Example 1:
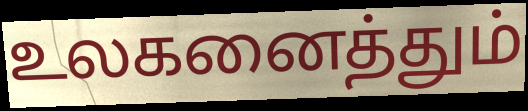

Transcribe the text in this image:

உலகனைத்தும்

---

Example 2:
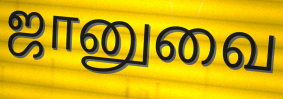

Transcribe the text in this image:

ஜானுவை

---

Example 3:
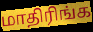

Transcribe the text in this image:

மாதிரிங்க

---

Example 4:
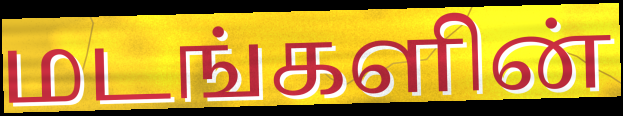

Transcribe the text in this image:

மடங்களின்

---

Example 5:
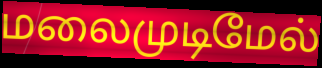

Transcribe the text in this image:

மலைமுடிமேல்